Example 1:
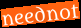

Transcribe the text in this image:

neednot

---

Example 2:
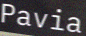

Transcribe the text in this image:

Pavia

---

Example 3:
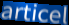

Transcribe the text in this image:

articel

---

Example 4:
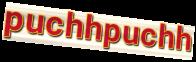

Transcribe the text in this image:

puchhpuchh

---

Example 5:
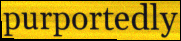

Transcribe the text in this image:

purportedly